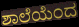
ಶಾಲೆಯೆಂದ